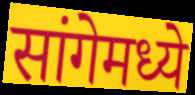
सांगेमध्ये